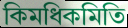
কিমধিকমিতি